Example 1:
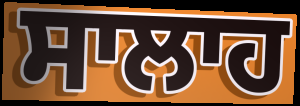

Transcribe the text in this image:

ਸਾਲਾਹ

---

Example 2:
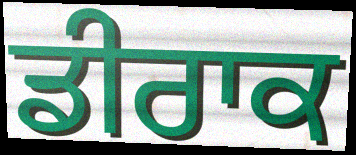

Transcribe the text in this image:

ਡੀਰਾਕ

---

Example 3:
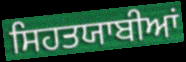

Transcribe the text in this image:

ਸਿਹਤਯਾਬੀਆਂ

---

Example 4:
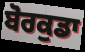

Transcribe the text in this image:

ਬੋਰਕੁਡਾ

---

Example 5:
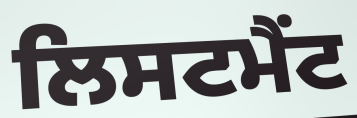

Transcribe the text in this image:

ਲਿਸਟਮੈਂਟ